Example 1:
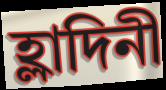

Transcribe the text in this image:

হ্লাদিনী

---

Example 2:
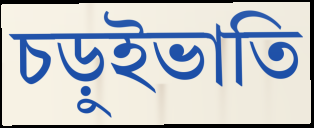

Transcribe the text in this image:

চড়ুইভাতি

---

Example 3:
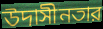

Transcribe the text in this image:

উদাসীনতার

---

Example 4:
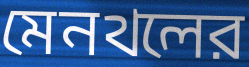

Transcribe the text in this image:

মেনথলের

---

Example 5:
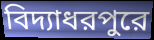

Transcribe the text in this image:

বিদ্যাধরপুরে